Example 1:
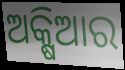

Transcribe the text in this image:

ଅକ୍ଷିଆର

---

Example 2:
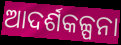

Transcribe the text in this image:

ଆଦର୍ଶକଳ୍ପନା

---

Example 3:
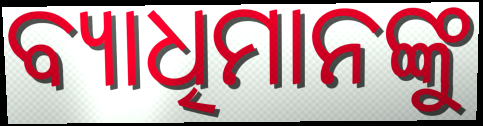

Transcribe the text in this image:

ବ୍ୟାଧିମାନଙ୍କୁ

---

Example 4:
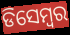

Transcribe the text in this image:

ଡିସେମ୍ୱର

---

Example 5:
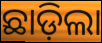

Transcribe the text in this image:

ଛାଡ଼ିଲା